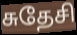
சுதேசி